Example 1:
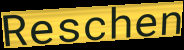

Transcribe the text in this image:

Reschen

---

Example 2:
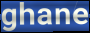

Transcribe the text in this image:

ghane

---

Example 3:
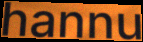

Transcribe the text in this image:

hannu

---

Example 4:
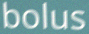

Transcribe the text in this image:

bolus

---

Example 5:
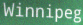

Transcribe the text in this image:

Winnipeg